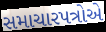
સમાચારપત્રોએ